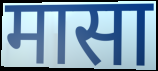
मासा